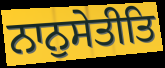
ਨਾਨੁਸੇਤੀਤਿ